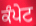
ਕੰਪੇਟ